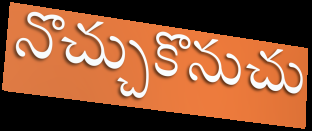
నొచ్చుకొనుచు